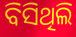
ବିସିଥିଲି